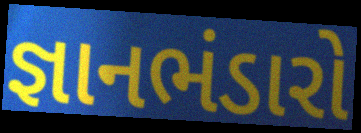
જ્ઞાનભંડારો